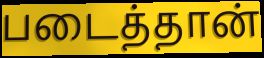
படைத்தான்